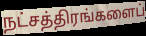
நட்சத்திரங்களைப்